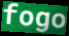
fogo